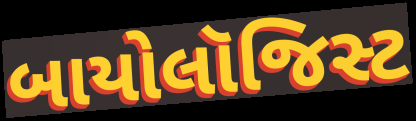
બાયોલૉજિસ્ટ